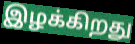
இழக்கிறது